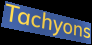
Tachyons